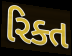
રિક્ત